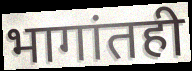
भागांतही